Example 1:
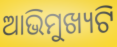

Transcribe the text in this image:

ଆଭିମୁଖ୍ୟଟି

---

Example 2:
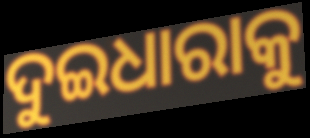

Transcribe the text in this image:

ଦୁଇଧାରାକୁ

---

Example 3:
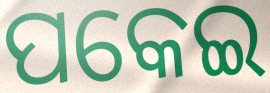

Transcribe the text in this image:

ପକେଇ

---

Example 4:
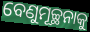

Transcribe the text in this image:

ବେଣୁମୂଚ୍ଛନାକୁ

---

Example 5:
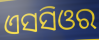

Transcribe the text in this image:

ଏସସିଓର